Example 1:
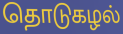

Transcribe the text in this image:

தொடுகழல்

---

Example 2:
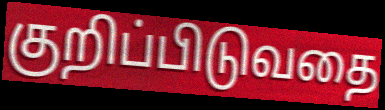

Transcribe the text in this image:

குறிப்பிடுவதை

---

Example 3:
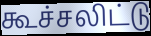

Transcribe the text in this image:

கூச்சலிட்டு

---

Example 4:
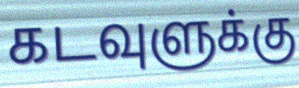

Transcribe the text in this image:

கடவுளுக்கு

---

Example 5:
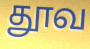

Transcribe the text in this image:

தூவ